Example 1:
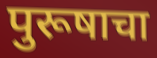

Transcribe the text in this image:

पुरूषाचा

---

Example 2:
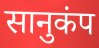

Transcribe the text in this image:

सानुकंप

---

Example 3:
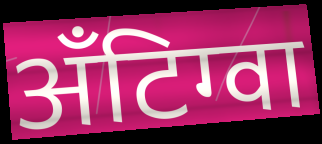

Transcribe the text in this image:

अँटिग्वा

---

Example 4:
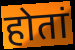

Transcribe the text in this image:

होतां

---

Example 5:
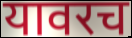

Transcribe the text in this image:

यावरच